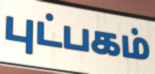
புட்பகம்